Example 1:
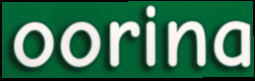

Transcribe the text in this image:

oorina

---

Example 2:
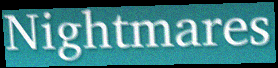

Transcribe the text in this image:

Nightmares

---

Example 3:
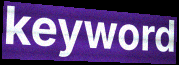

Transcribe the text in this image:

keyword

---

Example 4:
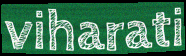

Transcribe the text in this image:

viharati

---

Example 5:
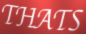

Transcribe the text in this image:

THATS